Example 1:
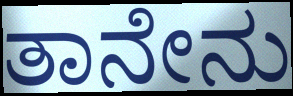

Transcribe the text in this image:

ತಾನೇನು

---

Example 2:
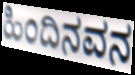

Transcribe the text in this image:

ಹಿಂದಿನವನ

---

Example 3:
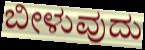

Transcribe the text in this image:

ಬೀಳುವುದು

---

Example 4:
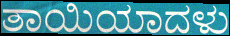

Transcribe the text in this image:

ತಾಯಿಯಾದಳು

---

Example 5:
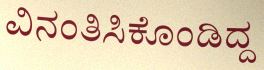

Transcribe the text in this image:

ವಿನಂತಿಸಿಕೊಂಡಿದ್ದ